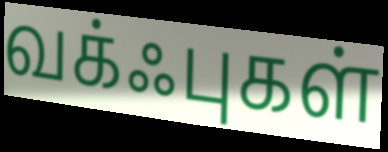
வக்ஃபுகள்